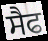
ਸੈਫ